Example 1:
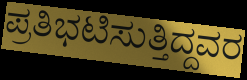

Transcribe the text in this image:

ಪ್ರತಿಭಟಿಸುತ್ತಿದ್ದವರ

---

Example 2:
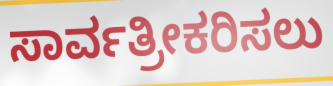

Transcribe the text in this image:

ಸಾರ್ವತ್ರೀಕರಿಸಲು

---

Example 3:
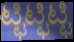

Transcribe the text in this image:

ಟ್ಟಿಟ್ಟಿಟ್ಟಿ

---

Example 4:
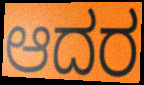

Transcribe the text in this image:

ಆದರ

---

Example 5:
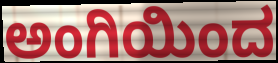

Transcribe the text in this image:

ಅಂಗಿಯಿಂದ